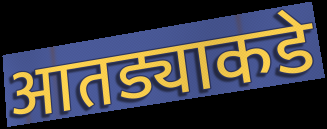
आतड्याकडे